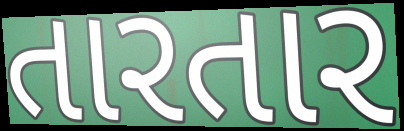
તારતાર